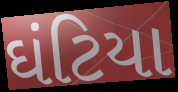
ઘંટિયા